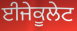
ਈਜੇਕੂਲੇਟ